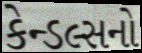
કેન્ડલ્સનો